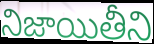
నిజాయితీని